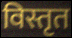
विस्तृत